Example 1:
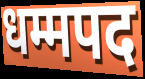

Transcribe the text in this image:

धम्मपद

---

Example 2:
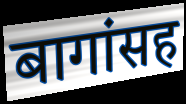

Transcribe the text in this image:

बागांसह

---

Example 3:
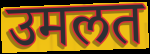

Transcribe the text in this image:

उमलत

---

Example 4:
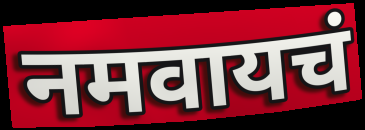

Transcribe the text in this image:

नमवायचं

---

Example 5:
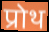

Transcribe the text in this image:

प्रोथ